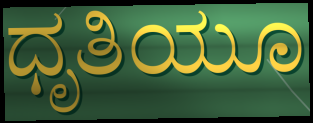
ಧೃತಿಯೂ